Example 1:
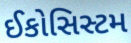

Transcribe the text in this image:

ઈકોસિસ્ટમ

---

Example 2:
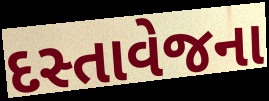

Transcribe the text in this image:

દસ્તાવેજના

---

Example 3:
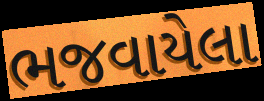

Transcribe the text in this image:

ભજવાયેલા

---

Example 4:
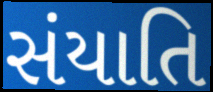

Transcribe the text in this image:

સંયાતિ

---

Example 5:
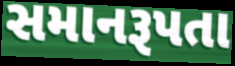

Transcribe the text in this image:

સમાનરૂપતા